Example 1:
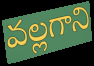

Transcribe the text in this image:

వల్లగాని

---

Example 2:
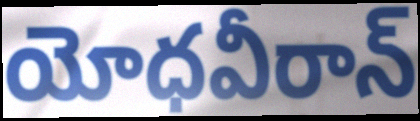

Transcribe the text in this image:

యోధవీరాన్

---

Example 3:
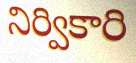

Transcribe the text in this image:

నిర్వికారి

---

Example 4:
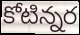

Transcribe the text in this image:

కోటిన్నర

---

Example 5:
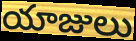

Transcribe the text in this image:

యాజులు